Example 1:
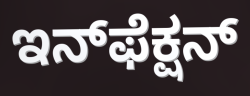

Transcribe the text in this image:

ಇನ್‌ಫೆಕ್ಷನ್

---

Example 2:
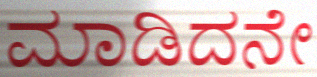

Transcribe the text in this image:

ಮಾಡಿದನೇ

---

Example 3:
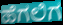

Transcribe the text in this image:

ಹೆಗಲಿಗ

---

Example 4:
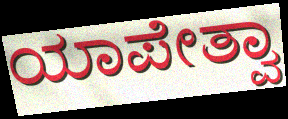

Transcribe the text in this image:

ಯಾಪೇತ್ವಾ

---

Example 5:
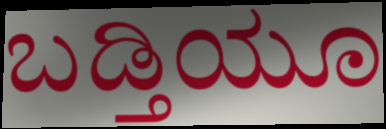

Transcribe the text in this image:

ಬಡ್ತಿಯೂ